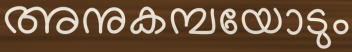
അനുകമ്പയോടും